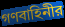
গণবাহিনীর